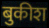
बुकीश